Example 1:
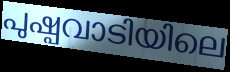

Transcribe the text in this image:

പുഷ്പവാടിയിലെ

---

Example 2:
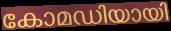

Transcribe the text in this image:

കോമഡിയായി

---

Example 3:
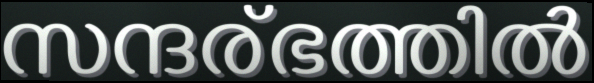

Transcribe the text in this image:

സന്ദര്ഭത്തിൽ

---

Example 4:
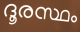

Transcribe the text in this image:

ദൂരസ്ഥം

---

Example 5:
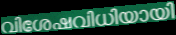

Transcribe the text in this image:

വിശേഷവിധിയായി